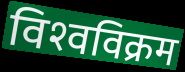
विश्वविक्रम